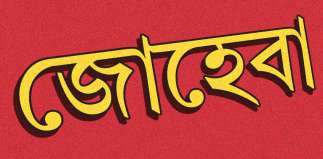
জোহেবা